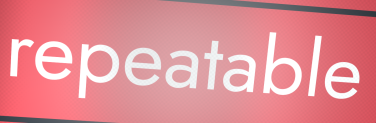
repeatable